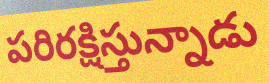
పరిరక్షిస్తున్నాడు